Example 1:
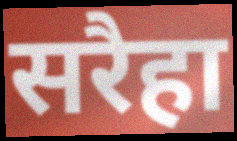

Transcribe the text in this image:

सरैहा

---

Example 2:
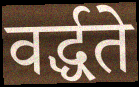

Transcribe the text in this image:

वर्द्धते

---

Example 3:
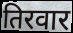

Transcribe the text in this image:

तिरवार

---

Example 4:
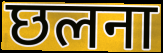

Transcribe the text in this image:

छलना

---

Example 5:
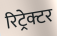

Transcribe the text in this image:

रिट्रेक्टर